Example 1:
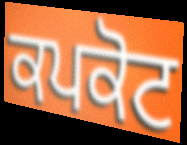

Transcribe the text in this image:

ਕਪਕੋਟ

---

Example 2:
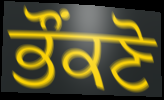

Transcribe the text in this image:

ਭੌਂਕਣੋ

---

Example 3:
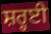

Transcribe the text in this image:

ਸ਼ਰ੍ਹਈ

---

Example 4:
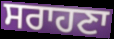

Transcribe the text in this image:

ਸਰਾਹਣਾ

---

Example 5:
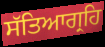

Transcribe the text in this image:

ਸੱਤਿਆਗ੍ਰਹਿ